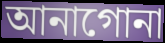
আনাগোনা